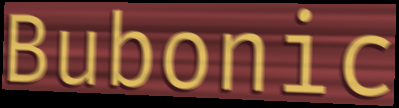
Bubonic